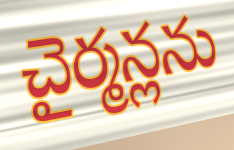
చైర్మన్లను